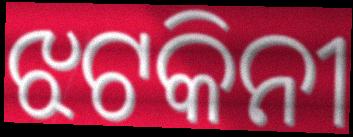
ଝଟକିନୀ